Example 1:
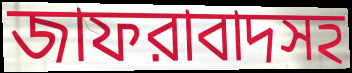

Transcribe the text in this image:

জাফরাবাদসহ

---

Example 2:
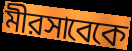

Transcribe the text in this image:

মীরসাবেকে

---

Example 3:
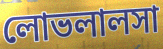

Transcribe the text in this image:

লোভলালসা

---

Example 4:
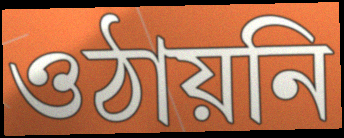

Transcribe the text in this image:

ওঠায়নি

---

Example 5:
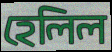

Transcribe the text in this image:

হেলিল